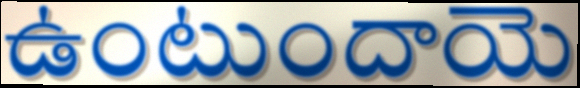
ఉంటుందాయె